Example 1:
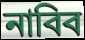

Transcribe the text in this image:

নাবিব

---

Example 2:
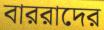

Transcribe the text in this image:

বাররাদের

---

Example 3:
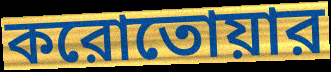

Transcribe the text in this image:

করোতোয়ার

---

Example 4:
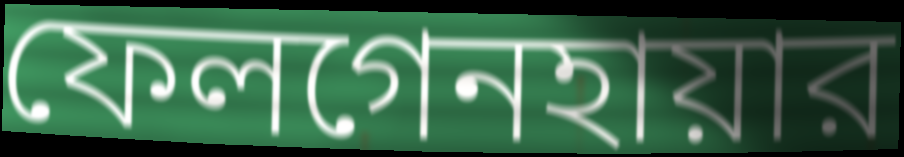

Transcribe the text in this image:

ফেলগেনহায়ার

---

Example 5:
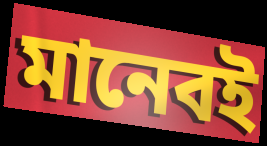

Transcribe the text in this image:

মানেবই